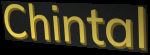
Chintal